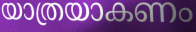
യാത്രയാകണം